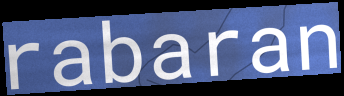
rabaran